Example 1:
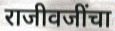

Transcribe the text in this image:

राजीवजींचा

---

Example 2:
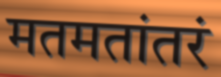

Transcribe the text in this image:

मतमतांतरं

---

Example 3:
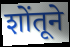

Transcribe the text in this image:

शोंतूने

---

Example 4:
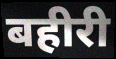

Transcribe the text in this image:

बहीरी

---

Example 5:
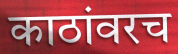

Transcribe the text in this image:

काठांवरच